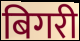
बिगरी